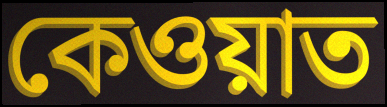
কেওয়াত